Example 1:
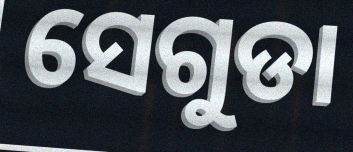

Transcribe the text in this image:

ସେଗୁଡା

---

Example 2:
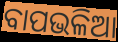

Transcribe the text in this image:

ବାପଭଳିଆ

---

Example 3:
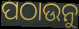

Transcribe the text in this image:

ପଠାଉନୁ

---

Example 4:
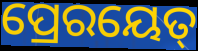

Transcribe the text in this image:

ପ୍ରେରୟେତ୍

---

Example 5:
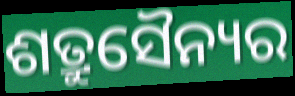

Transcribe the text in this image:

ଶତ୍ରୁସୈନ୍ୟର